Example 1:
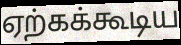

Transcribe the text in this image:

ஏற்கக்கூடிய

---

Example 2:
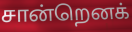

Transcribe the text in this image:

சான்றெனக்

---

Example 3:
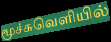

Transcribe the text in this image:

மூச்சுவெளியில்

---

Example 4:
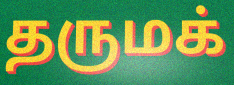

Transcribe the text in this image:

தருமக்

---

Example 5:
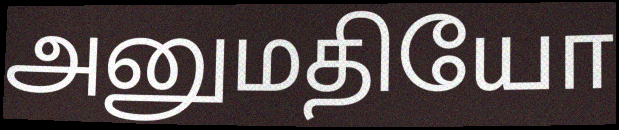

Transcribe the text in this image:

அனுமதியோ